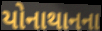
યોનાથાનના